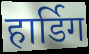
हार्डिग